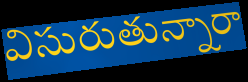
విసురుతున్నారా